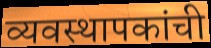
व्यवस्थापकांची